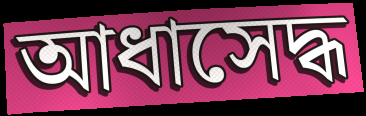
আধাসেদ্ধ